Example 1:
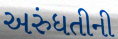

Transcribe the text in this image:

અરુંધતીની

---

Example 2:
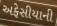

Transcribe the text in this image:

અફેસીયાની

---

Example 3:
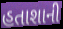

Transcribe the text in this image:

હતાશાની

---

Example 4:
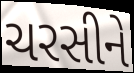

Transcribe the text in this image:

ચરસીને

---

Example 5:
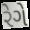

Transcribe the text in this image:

રેગે